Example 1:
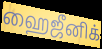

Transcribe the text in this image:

ஹைஜீனிக்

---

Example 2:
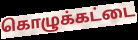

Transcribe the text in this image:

கொழுக்கட்டை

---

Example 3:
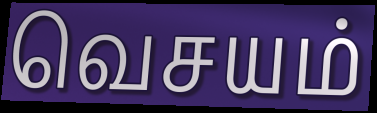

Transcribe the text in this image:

வெசயம்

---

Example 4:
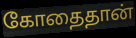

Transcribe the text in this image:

கோதைதான்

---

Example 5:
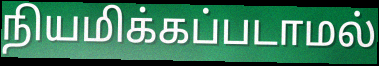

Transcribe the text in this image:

நியமிக்கப்படாமல்